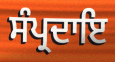
ਸੰਪ੍ਰਦਾਇ